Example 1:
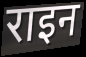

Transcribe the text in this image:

राइन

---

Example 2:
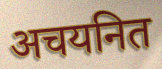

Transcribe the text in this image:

अचयनित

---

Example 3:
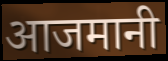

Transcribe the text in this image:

आजमानी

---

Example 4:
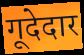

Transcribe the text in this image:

गूदेदार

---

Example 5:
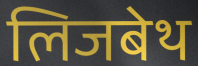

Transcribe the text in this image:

लिजबेथ